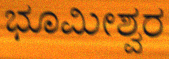
ಭೂಮೀಶ್ವರ